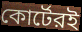
কোর্টেরই